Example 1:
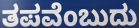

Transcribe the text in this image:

ತಪವೆಂಬುದು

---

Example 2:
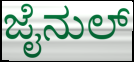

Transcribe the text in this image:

ಜೈನುಲ್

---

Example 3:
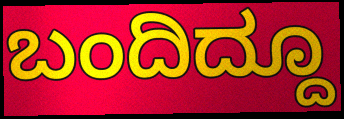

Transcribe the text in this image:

ಬಂದಿದ್ದೂ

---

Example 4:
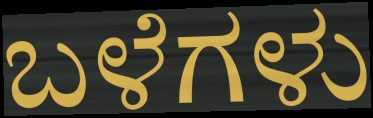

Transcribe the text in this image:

ಬಳೆಗಳು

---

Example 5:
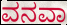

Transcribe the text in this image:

ವನವಾ